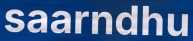
saarndhu